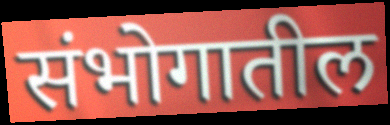
संभोगातील